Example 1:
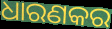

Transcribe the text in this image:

ଧାରଣକର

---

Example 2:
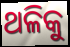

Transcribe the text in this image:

ଥଳିକୁ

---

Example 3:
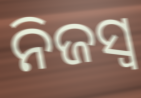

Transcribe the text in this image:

ନିଜସ୍ୱ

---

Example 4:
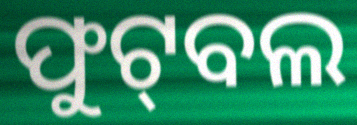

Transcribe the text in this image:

ଫୁଟ୍‌ବଲ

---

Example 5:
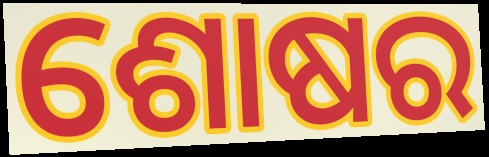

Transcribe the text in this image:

ଶୋଷର